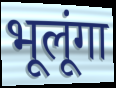
भूलूंगा